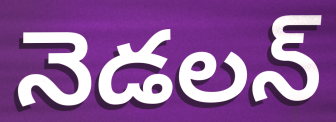
నెడలన్